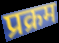
प्रक्रम